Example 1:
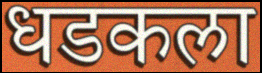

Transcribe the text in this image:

धडकला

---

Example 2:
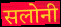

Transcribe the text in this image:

सलोनी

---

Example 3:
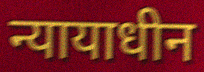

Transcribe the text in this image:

न्यायाधीन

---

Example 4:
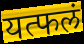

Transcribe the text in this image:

यत्फलं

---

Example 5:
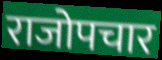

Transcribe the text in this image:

राजोपचार